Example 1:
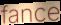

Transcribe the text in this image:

fance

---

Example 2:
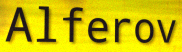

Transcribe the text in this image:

Alferov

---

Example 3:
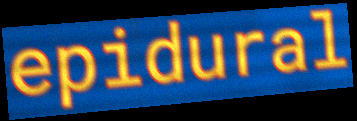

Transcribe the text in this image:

epidural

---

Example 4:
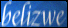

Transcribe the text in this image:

belizwe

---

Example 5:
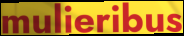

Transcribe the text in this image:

mulieribus